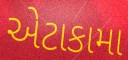
એટાકામા